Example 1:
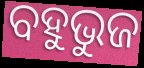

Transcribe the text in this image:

ବହୁଭୁଜ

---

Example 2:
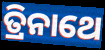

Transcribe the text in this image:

ତ୍ରିନାଥେ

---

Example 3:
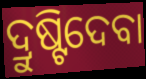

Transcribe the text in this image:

ଦ୍ରୁଷ୍ଟିଦେବା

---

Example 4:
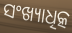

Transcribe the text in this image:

ସଂଖ୍ୟାଧିତ୍କ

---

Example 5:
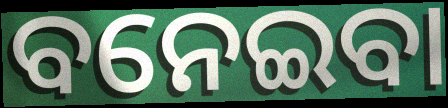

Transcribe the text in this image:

ବନେଇବା